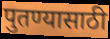
पुतण्यासाठी